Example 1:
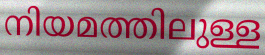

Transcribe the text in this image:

നിയമത്തിലുള്ള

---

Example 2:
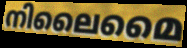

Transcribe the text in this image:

നിലൈമൈ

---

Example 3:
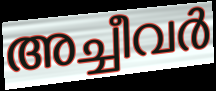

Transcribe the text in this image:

അച്ചീവർ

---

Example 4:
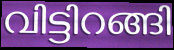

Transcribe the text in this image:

വിട്ടിറങ്ങി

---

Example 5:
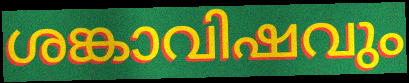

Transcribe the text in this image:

ശങ്കാവിഷവും